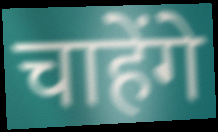
चाहेंगे